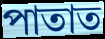
পাতাত